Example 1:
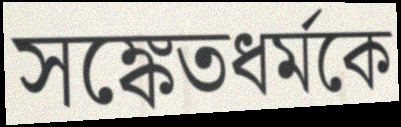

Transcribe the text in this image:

সঙ্কেতধর্মকে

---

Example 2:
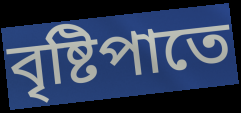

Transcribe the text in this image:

বৃষ্টিপাতে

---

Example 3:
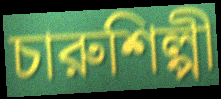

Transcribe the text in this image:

চারুশিল্পী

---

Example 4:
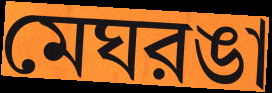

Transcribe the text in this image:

মেঘরঙা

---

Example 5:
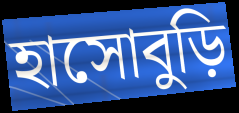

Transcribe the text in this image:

হাসোবুড়ি